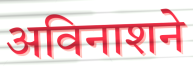
अविनाशने